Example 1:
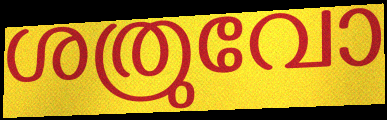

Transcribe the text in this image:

ശത്രുവോ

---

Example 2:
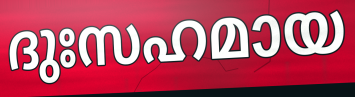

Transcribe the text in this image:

ദുഃസഹമായ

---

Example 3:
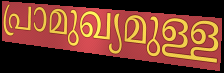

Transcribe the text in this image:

പ്രാമുഖ്യമുള്ള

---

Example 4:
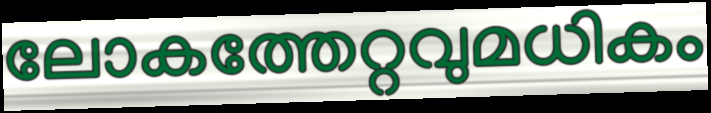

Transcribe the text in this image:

ലോകത്തേറ്റവുമധികം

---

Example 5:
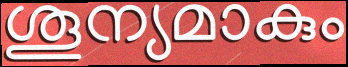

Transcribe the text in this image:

ശൂന്യമാകും